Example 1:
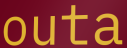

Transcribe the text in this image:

outa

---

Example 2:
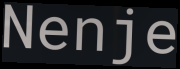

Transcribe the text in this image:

Nenje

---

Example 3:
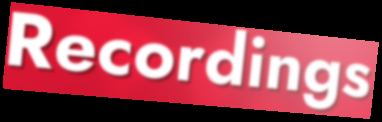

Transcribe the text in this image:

Recordings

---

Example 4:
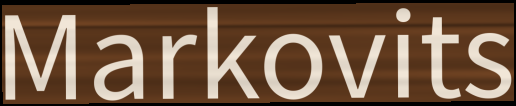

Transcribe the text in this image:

Markovits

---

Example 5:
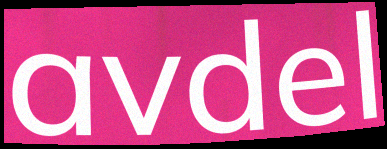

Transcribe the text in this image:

avdel